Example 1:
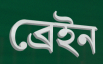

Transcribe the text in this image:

ব্রেইন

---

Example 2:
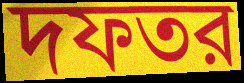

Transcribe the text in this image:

দফতর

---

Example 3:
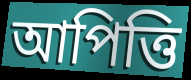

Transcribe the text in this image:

আপিত্তি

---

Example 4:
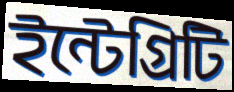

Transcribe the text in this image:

ইন্টেগ্রিটি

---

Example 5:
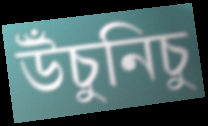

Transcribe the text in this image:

উঁচুনিচু